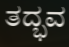
ತದ್ಭವ